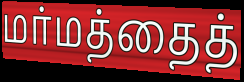
மர்மத்தைத்